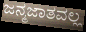
ಜನ್ಮಜಾತವಲ್ಲ